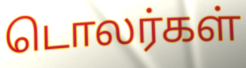
டொலர்கள்